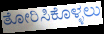
ತೋರಿಸಿಕೊಳ್ಳಲು